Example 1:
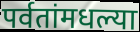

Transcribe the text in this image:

पर्वतांमधल्या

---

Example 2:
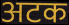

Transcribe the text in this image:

अटक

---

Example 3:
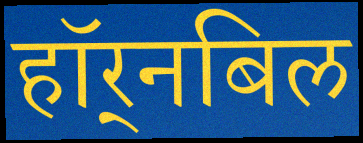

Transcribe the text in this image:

हॉर्नबिल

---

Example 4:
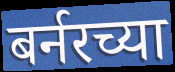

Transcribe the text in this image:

बर्नरच्या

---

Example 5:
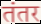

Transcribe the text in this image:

तंतर